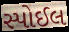
સ્પોઈલ